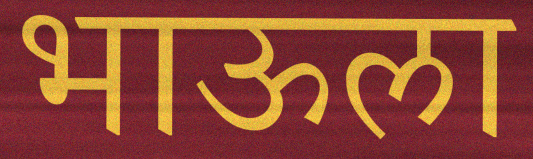
भाऊला